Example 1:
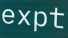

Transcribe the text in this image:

expt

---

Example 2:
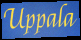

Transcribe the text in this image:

Uppala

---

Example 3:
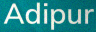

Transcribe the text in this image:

Adipur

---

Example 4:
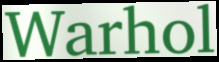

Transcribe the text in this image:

Warhol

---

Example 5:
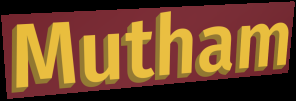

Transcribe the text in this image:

Mutham